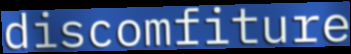
discomfiture